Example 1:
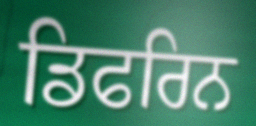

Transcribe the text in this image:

ਡਿਫਰਿਨ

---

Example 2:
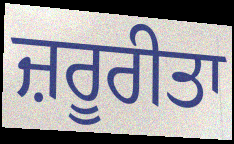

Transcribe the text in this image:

ਜ਼ਰੂਰੀਤਾ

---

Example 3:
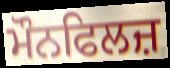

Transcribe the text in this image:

ਮੌਨਫਿਲਜ਼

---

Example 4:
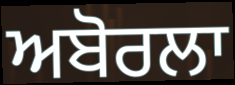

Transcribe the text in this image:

ਅਬੋਰਲਾ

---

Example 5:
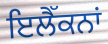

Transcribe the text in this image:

ਇਲੈੱਕਨਾਂ